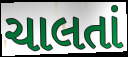
ચાલતાં